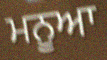
ਮਨੂਆ